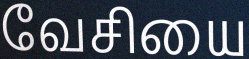
வேசியை